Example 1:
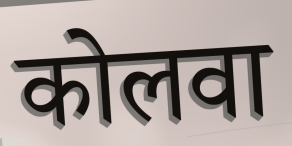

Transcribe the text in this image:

कोलवा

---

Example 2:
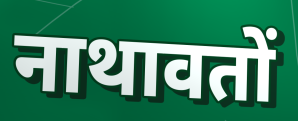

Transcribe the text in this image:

नाथावतों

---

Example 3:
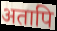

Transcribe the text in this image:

अतापि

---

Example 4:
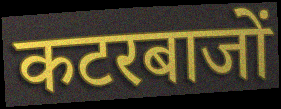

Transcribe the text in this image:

कटरबाजों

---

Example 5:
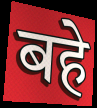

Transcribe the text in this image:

बहे